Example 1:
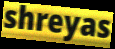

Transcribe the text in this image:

shreyas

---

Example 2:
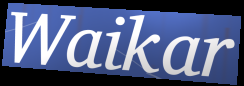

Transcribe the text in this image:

Waikar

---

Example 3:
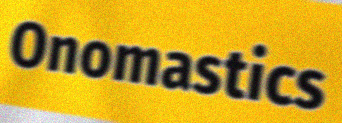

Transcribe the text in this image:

Onomastics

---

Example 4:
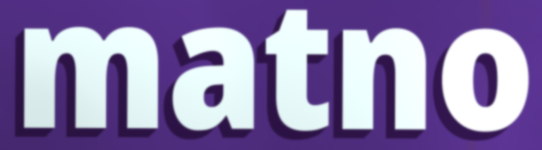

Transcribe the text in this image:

matno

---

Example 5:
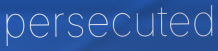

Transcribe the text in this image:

persecuted